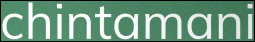
chintamani